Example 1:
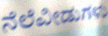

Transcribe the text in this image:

ನೆಲೆವೀಡುಗಳು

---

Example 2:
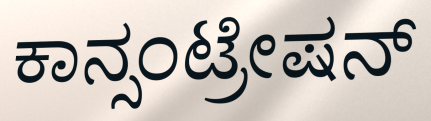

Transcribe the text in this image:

ಕಾನ್ಸಂಟ್ರೇಷನ್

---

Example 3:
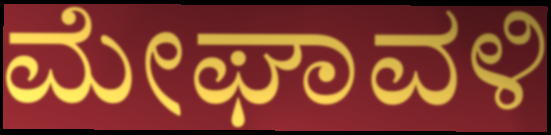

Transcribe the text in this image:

ಮೇಘಾವಳಿ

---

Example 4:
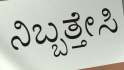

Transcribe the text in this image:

ನಿಬ್ಬತ್ತೇಸಿ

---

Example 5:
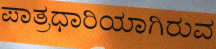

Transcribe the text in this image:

ಪಾತ್ರಧಾರಿಯಾಗಿರುವ